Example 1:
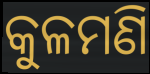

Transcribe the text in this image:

କୁଳମଣି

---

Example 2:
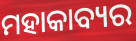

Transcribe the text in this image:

ମହାକାବ୍ୟର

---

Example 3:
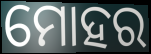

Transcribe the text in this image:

ମୋହର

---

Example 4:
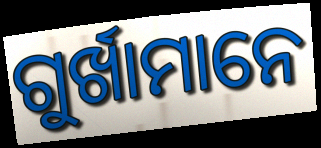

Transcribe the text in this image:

ଗୁର୍ଖାମାନେ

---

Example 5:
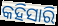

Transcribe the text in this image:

କହିସାରି